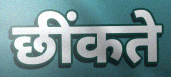
छींकते